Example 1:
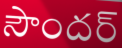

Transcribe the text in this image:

సౌందర్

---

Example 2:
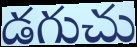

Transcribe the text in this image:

డగుచు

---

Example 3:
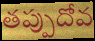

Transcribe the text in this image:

తప్పుదోవ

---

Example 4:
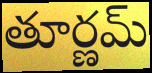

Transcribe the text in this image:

తూర్ణమ్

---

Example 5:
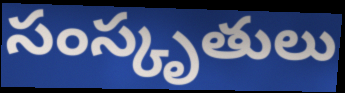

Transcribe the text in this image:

సంస్కృతులు